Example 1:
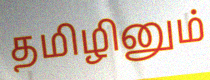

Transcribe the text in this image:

தமிழினும்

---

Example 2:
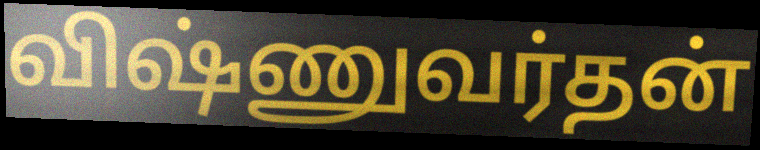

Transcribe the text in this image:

விஷ்ணுவர்தன்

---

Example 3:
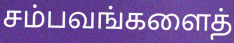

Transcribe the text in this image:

சம்பவங்களைத்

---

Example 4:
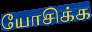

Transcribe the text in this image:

யோசிக்க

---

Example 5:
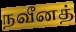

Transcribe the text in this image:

நவீனத்